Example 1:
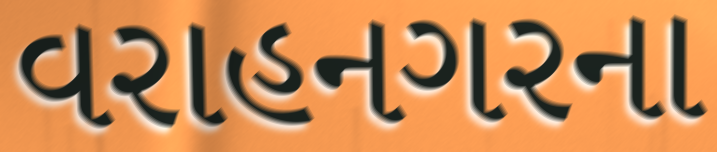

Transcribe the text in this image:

વરાહનગરના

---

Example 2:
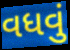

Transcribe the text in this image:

વધવું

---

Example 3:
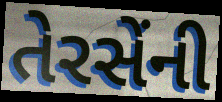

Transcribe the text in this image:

તેરસેંની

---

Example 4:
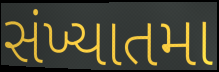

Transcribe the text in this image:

સંખ્યાતમા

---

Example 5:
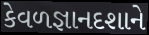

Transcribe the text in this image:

કેવળજ્ઞાનદશાને